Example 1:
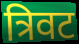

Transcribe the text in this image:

त्रिवट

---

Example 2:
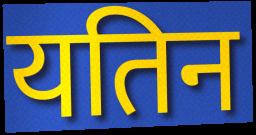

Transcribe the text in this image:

यतिन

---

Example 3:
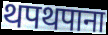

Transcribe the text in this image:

थपथपाना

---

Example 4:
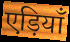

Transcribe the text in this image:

एड़ियाँ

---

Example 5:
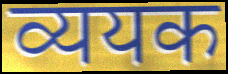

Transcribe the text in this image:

व्ययक